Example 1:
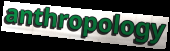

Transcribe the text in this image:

anthropology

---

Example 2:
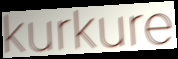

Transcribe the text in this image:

kurkure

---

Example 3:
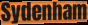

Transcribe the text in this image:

Sydenham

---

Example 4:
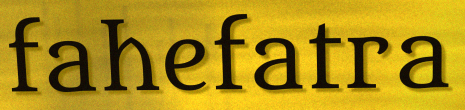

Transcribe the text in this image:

fahefatra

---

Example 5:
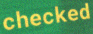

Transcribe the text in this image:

checked